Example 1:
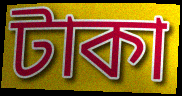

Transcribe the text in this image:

টাকা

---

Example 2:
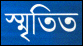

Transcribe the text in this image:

স্মৃতিত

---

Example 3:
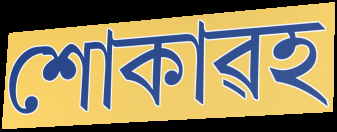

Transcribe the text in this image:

শোকাৱহ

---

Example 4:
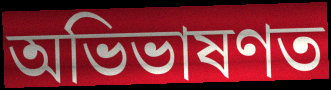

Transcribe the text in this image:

অভিভাষণত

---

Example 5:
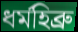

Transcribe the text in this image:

ধৰ্মহিব্ৰু